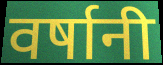
वर्षानी